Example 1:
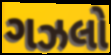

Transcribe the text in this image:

ગઝલો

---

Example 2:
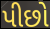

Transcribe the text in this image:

પીછો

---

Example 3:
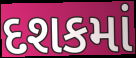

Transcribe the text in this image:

દશકમાં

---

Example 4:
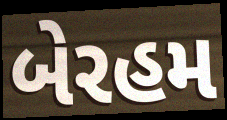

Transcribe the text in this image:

બેરહમ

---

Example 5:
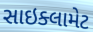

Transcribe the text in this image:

સાઇક્લામેટ